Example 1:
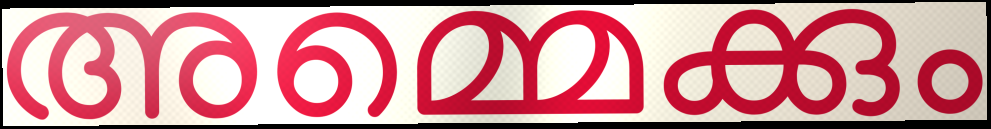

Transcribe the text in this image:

അമ്മെക്കും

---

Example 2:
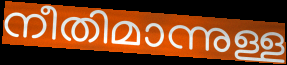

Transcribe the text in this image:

നീതിമാന്നുള്ള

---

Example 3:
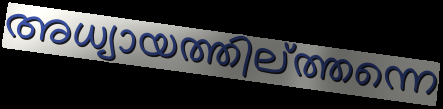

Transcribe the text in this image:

അധ്യായത്തില്ത്തന്നെ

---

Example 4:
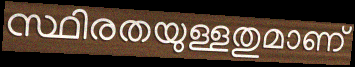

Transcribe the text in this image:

സ്ഥിരതയുള്ളതുമാണ്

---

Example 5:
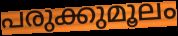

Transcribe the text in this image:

പരുക്കുമൂലം